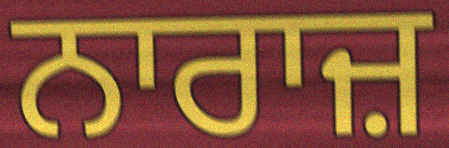
ਨਾਰਾਜ਼